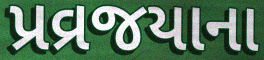
પ્રવ્રજયાના